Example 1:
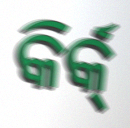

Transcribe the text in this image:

କିର୍କ୍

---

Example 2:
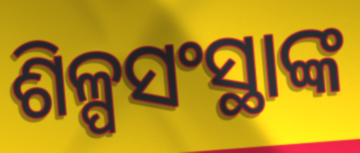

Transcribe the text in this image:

ଶିଳ୍ପସଂସ୍ଥାଙ୍କ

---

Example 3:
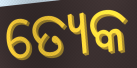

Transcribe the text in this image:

ତ୍ଯେକ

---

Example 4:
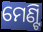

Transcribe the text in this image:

ମେଣ୍ଟି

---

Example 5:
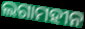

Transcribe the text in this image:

ଲଗାମହୀନ